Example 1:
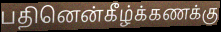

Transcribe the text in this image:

பதினென்கீழ்க்கணக்கு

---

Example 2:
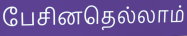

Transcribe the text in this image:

பேசினதெல்லாம்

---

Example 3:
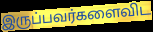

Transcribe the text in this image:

இருப்பவர்களைவிட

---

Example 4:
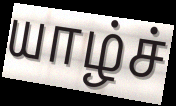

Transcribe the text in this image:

யாழ்ச்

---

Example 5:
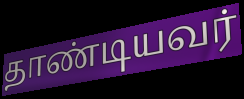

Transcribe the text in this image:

தாண்டியவர்